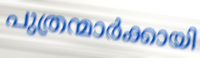
പുത്രന്മാർക്കായി